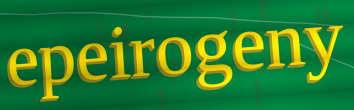
epeirogeny